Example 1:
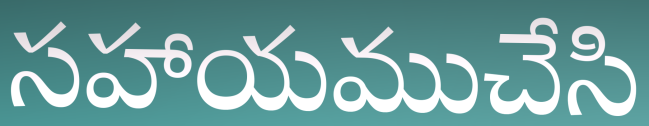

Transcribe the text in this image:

సహాయముచేసి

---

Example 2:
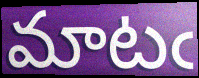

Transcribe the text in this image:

మాటఁ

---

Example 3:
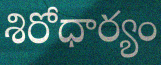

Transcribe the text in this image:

శిరోధార్యం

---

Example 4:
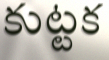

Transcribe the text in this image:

కుట్టక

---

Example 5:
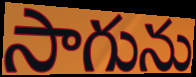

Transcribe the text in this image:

సాగును